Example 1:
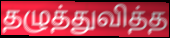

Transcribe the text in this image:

தழுத்துவித்த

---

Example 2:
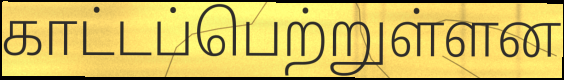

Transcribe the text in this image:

காட்டப்பெற்றுள்ளன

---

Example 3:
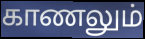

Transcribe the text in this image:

காணலும்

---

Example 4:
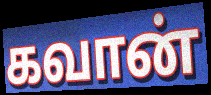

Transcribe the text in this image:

கவான்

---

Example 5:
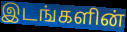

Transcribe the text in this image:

இடங்களின்